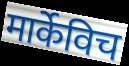
मार्केविच